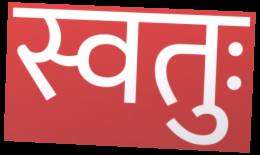
स्वतुः